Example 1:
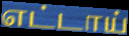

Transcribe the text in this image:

எட்டாய்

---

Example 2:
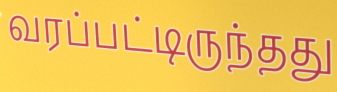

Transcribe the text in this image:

வரப்பட்டிருந்தது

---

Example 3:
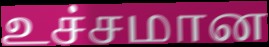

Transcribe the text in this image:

உச்சமான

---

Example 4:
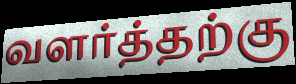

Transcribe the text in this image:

வளர்த்தற்கு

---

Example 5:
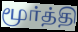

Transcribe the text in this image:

மூர்த்தி